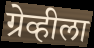
ग्रेव्हीला